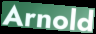
Arnold